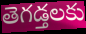
తెగడ్తలకు